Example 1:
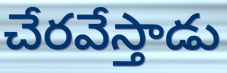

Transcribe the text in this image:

చేరవేస్తాడు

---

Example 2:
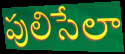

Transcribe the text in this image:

పులిసేలా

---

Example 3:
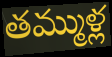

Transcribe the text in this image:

తమ్ముళ్ల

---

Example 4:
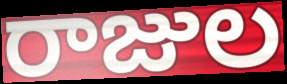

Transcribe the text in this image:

రాజుల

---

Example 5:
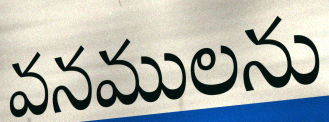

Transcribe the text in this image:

వనములను